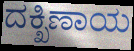
ದಕ್ಖಿಣಾಯ